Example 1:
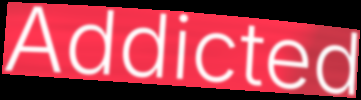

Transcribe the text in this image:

Addicted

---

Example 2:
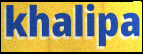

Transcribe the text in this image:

khalipa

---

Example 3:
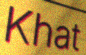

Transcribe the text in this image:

Khat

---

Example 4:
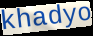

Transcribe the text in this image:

khadyo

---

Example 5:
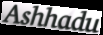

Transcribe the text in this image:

Ashhadu